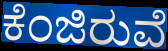
ಕೆಂಜಿರುವೆ